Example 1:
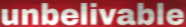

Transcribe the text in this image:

unbelivable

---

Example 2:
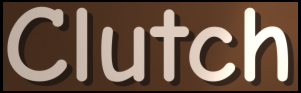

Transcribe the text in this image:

Clutch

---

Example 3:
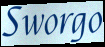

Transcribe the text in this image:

Sworgo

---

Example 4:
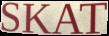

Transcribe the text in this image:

SKAT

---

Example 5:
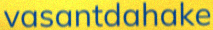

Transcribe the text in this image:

vasantdahake